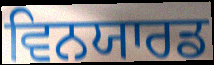
ਵਿਨਯਾਰਡ